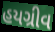
હયગ્રીવ